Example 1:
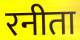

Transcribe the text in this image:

रनीता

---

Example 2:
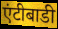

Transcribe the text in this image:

एंटीबाडी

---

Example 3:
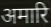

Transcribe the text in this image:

अमारि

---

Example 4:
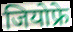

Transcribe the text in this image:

जियोफ्रे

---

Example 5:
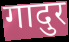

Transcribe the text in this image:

गादुर